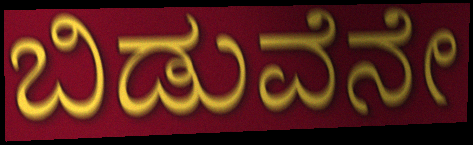
ಬಿಡುವೆನೇ